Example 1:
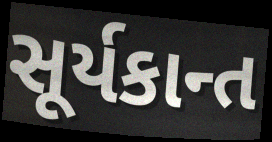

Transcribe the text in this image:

સૂર્યકાન્ત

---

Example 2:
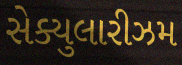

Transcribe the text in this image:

સેક્યુલારીઝમ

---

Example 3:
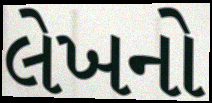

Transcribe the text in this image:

લેખનો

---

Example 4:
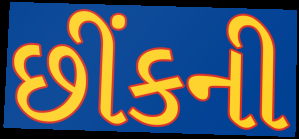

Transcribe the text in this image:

છીંકની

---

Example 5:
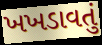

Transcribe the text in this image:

ખખડાવતું